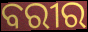
ବରୀର